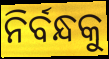
ନିର୍ବନ୍ଧକୁ